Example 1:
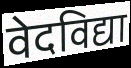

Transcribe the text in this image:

वेदविद्या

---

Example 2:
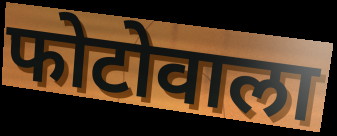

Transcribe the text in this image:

फोटोवाला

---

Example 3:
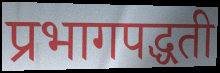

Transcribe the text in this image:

प्रभागपद्धती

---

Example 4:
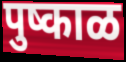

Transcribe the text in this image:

पुष्काळ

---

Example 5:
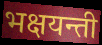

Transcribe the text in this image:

भक्षयन्ती